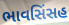
ભાવસિંસહ